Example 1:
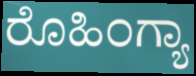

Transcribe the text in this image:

ರೊಹಿಂಗ್ಯಾ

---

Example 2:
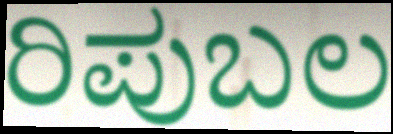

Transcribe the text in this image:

ರಿಪುಬಲ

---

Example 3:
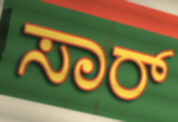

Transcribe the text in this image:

ಸಾರ್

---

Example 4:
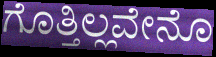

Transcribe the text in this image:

ಗೊತ್ತಿಲ್ಲವೇನೊ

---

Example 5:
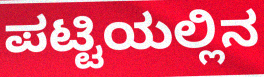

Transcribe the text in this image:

ಪಟ್ಟಿಯಲ್ಲಿನ